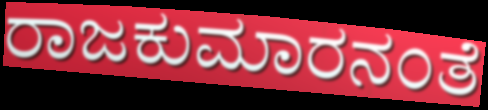
ರಾಜಕುಮಾರನಂತೆ